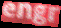
engr